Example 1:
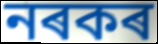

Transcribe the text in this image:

নৰকৰ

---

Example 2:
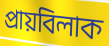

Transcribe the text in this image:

প্ৰায়বিলাক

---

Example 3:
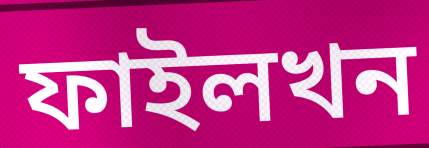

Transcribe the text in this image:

ফাইলখন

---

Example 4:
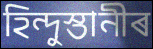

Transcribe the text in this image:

হিন্দুস্তানীৰ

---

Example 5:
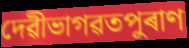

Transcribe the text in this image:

দেৱীভাগৱতপুৰাণ